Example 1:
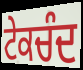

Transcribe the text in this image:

ਟੇਕਚੰਦ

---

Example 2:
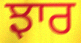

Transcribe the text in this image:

ਝਾਰ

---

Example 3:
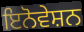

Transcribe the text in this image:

ਇਨੋਵੇਸ਼ਨ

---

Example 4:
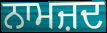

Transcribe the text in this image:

ਨਾਮਜ਼ਦ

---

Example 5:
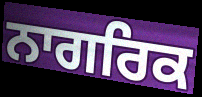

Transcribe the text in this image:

ਨਾਗਰਿਕ